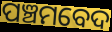
ପଞ୍ଚମବେଦ